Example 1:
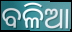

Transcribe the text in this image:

ବଳିଆ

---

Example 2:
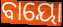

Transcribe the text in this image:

ବାୟୋ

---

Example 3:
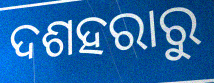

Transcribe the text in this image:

ଦଶହରାରୁ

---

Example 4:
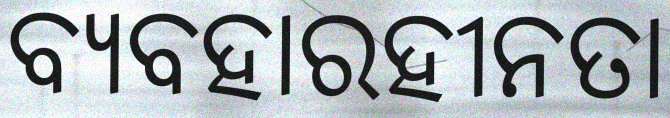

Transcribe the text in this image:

ବ୍ୟବହାରହୀନତା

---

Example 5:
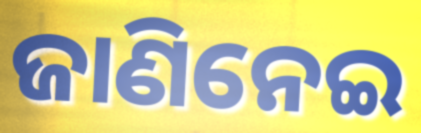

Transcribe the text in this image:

ଜାଣିନେଇ